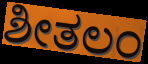
ಶೀತಲಂ